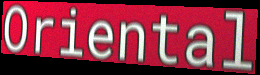
Oriental